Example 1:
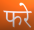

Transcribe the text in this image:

फरे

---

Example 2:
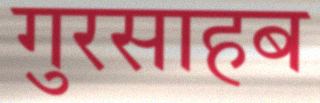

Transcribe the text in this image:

गुरसाहब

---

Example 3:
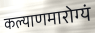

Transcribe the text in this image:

कल्याणमारोग्यं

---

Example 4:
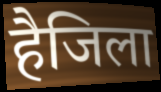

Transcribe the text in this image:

हैजिला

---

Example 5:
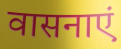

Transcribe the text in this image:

वासनाएं